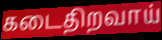
கடைதிறவாய்